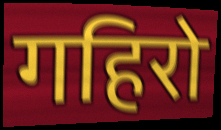
गहिरो